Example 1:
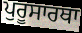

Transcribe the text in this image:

ਪੁਰੂਸਾਰਥਾ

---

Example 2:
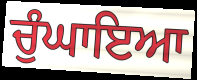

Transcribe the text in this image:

ਚੁੰਘਾਇਆ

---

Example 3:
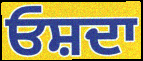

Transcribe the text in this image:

ਓਸ਼ਦਾ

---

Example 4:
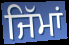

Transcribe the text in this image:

ਜਿੱਮਾਂ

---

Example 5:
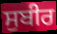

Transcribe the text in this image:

ਸੁਬੀਰ